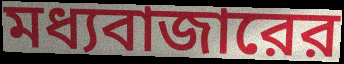
মধ্যবাজারের